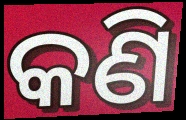
କଣି